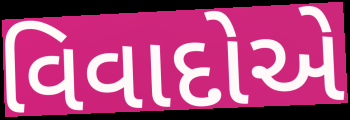
વિવાદોએ